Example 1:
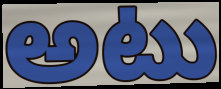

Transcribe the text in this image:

అటు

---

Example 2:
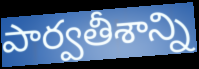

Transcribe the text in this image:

పార్వతీశాన్ని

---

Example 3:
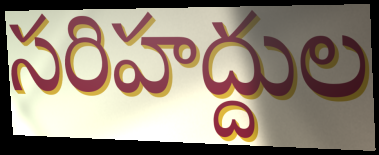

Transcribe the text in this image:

సరిహద్దుల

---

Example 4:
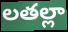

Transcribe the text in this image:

లతల్లా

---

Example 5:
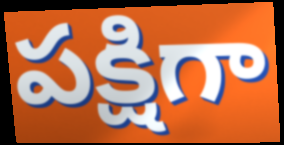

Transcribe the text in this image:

పక్షిగా